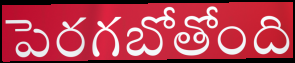
పెరగబోతోంది